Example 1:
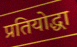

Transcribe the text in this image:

प्रतियोद्धा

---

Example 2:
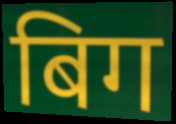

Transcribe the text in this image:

बिग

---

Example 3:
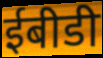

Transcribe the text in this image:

ईबीडी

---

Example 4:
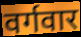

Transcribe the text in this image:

वर्गवार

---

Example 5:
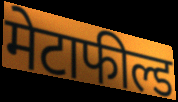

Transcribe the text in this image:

मेटाफील्ड